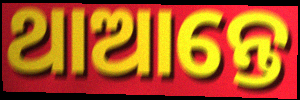
ଥାଆନ୍ତେ